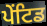
ਪੇਂਟਿਡ